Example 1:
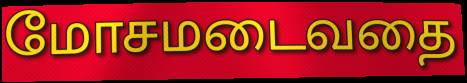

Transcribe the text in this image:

மோசமடைவதை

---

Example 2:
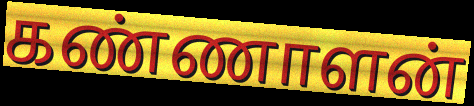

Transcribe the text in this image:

கண்ணாளன்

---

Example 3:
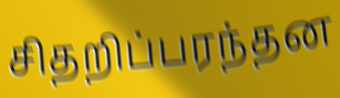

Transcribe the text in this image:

சிதறிப்பரந்தன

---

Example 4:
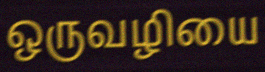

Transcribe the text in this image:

ஒருவழியை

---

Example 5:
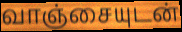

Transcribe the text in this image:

வாஞ்சையுடன்